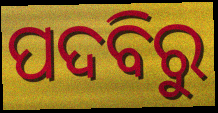
ପଦବିରୁ